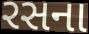
રસના